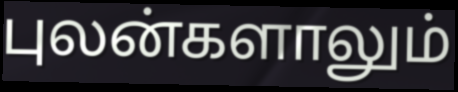
புலன்களாலும்